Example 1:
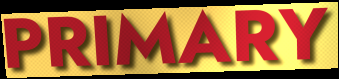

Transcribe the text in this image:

PRIMARY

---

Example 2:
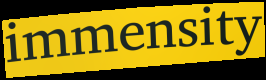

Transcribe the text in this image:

immensity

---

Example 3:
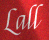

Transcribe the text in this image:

Lall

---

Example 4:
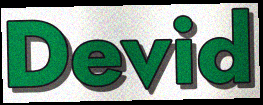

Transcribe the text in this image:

Devid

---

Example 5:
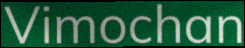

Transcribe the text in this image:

Vimochan